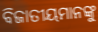
ବିଜାତୀୟମାନଙ୍କୁ